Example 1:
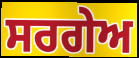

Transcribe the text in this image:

ਸਰਗੇਅ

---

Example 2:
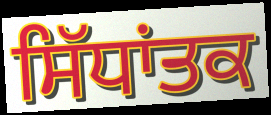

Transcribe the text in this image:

ਸਿੱਧਾਂਤਕ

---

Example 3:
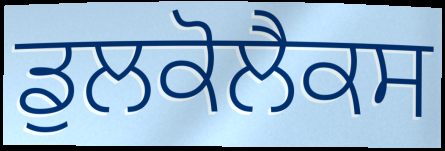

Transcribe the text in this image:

ਡੁਲਕੋਲੈਕਸ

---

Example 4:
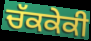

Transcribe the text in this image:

ਚੱਕਕੇਕੀ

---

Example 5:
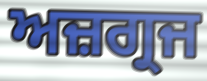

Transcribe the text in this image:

ਅਜ਼ਗ੍ਰਜ